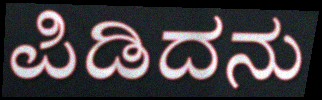
ಪಿಡಿದನು